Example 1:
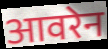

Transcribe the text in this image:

आवरेन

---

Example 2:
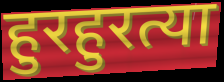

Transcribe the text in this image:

हुरहुरत्या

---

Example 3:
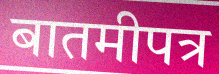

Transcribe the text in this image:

बातमीपत्र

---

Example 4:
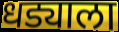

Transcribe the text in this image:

धड्याला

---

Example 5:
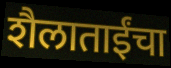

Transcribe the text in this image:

शैलाताईंचा